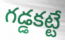
గడ్డకట్టే